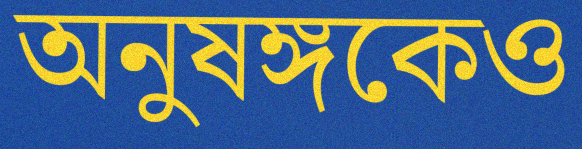
অনুষঙ্গকেও